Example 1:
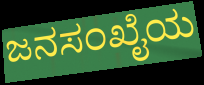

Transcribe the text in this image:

ಜನಸಂಖೈಯ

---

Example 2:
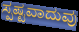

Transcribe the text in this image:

ಸ್ಪಷ್ಟವಾದುವು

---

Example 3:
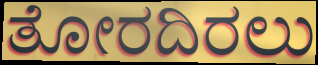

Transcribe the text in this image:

ತೋರದಿರಲು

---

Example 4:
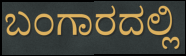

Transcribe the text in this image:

ಬಂಗಾರದಲ್ಲಿ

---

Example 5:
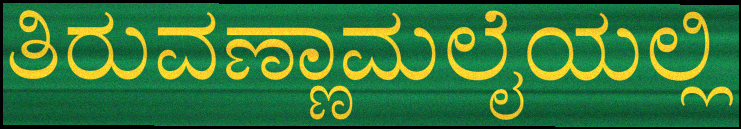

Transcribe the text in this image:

ತಿರುವಣ್ಣಾಮಲೈಯಲ್ಲಿ